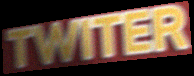
TWITER